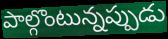
పాల్గొంటున్నప్పుడు